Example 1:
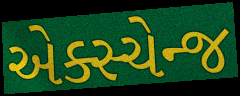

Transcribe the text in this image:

એક્સ્ચેન્જ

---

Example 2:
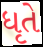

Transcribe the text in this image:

ધૃતે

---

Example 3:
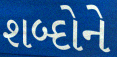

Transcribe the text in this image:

શબ્દોને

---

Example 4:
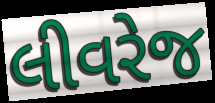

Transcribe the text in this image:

લીવરેજ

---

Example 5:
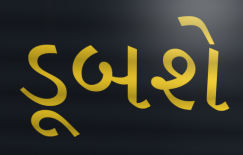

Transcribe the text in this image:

ડૂબશે